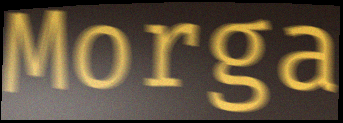
Morga